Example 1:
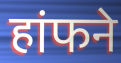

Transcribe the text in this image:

हांफने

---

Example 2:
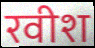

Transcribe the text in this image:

रवीश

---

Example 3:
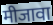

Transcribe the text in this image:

मीजावा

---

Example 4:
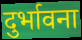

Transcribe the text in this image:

दुर्भावना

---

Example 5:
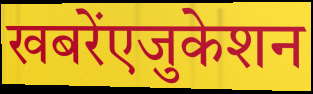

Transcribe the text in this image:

खबरेंएजुकेशन